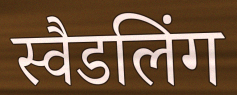
स्वैडलिंग